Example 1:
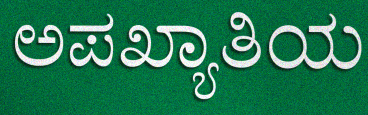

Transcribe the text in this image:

ಅಪಖ್ಯಾತಿಯ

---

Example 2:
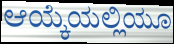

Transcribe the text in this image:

ಆಯ್ಕೆಯಲ್ಲಿಯೂ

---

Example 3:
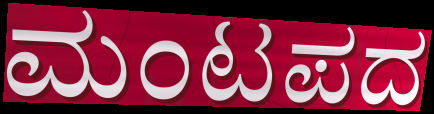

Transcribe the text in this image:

ಮಂಟಪದ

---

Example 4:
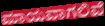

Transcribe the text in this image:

ಮಾಯವಾಗಲಿವೆ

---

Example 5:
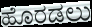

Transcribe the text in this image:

ಹೊರಡಲು